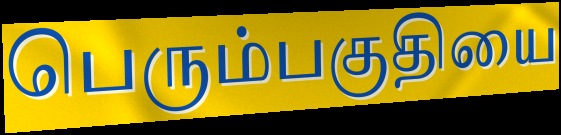
பெரும்பகுதியை